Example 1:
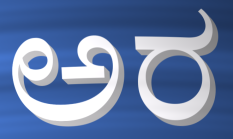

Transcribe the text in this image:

ಅರ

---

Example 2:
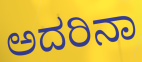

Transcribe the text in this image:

ಅದರಿನಾ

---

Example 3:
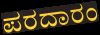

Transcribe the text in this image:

ಪರದಾರಂ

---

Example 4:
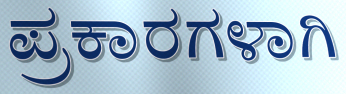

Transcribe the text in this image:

ಪ್ರಕಾರಗಳಾಗಿ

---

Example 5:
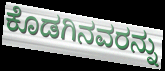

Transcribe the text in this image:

ಕೊಡಗಿನವರನ್ನು